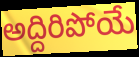
అద్దిరిపోయే